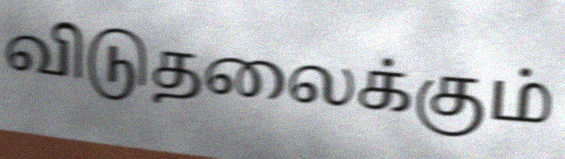
விடுதலைக்கும்